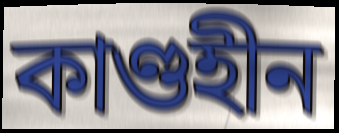
কাণ্ডহীন